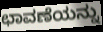
ಛಾವಣೆಯನ್ನು